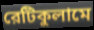
রেটিকুলামে